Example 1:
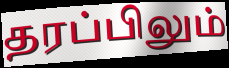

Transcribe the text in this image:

தரப்பிலும்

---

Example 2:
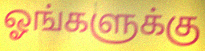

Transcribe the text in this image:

ஓங்களுக்கு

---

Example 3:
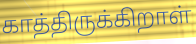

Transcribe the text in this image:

காத்திருக்கிறாள்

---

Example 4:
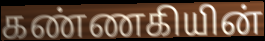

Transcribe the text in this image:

கண்ணகியின்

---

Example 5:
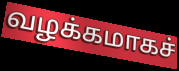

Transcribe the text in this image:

வழக்கமாகச்